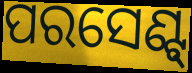
ପରସେଣ୍ଟ୍